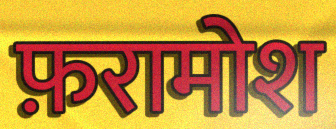
फ़रामोश